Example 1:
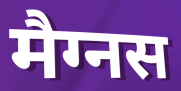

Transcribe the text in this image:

मैग्नस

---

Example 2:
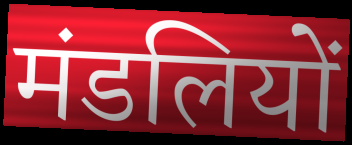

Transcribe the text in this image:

मंडलियों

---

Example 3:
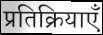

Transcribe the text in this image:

प्रतिक्रियाएँ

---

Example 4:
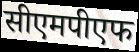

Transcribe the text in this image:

सीएमपीएफ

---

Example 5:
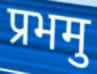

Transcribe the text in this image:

प्रभमु